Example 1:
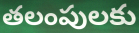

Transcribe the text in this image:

తలంపులకు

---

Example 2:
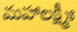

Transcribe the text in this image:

మహాలక్ష్మీః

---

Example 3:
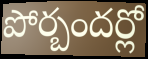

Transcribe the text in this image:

పోర్బందర్లో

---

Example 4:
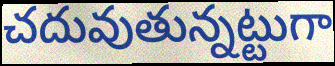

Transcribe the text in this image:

చదువుతున్నట్టుగా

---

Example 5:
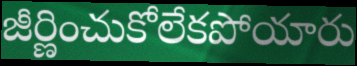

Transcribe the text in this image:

జీర్ణించుకోలేకపోయారు